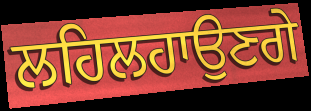
ਲਹਿਲਹਾਉਣਗੇ